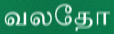
வலதோ